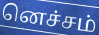
னெச்சம்